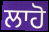
ਲਾਹੋ